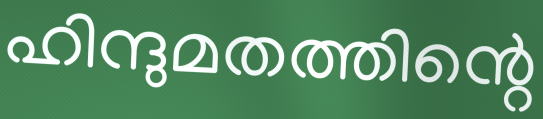
ഹിന്ദുമതത്തിന്റെ